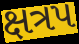
ક્ષત્રપ